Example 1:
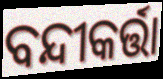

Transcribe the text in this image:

ବନ୍ଦୀକର୍ତ୍ତା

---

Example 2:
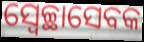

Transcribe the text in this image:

ସ୍ୱେଚ୍ଛାସେବକ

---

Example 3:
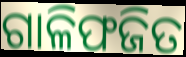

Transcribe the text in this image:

ଗାଳିଫଜିତ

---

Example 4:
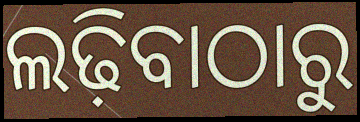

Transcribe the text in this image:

ଲଢ଼ିବାଠାରୁ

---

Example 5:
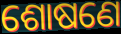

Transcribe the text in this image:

ଶୋଷଣେ